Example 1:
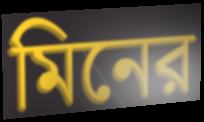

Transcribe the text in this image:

মিনের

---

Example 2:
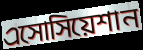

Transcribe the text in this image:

এসোসিয়েশান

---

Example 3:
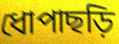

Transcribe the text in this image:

ধোপাছড়ি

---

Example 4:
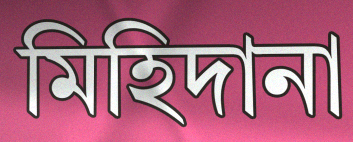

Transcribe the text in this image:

মিহিদানা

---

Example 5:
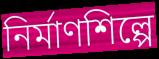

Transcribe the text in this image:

নির্মাণশিল্পে